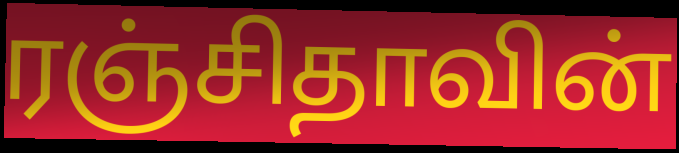
ரஞ்சிதாவின்